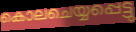
കൊലചെയ്യപ്പെട്ടു